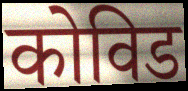
कोविड